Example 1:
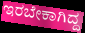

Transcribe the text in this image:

ಇರಬೇಕಾಗಿದ್ದ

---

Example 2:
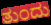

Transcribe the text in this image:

ತುಂದು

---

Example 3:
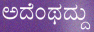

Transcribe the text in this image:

ಅದೆಂಥದ್ದು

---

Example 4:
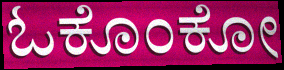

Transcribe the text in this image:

ಓಕೊಂಕೋ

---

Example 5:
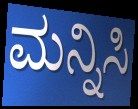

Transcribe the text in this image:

ಮನ್ನಿಸಿ